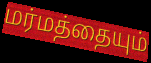
மர்மத்தையும்